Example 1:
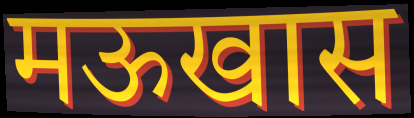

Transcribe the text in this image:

मऊखास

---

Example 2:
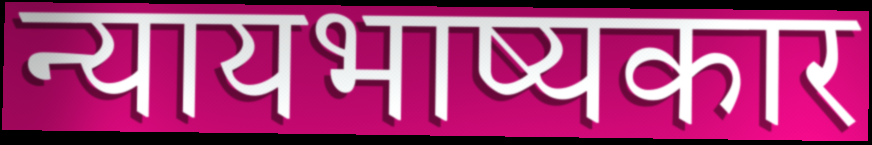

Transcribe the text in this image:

न्यायभाष्यकार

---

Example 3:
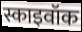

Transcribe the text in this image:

स्काइवॉक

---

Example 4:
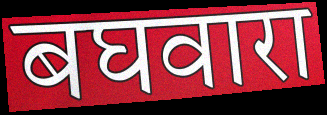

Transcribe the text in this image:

बघवारा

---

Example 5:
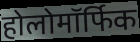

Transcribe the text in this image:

होलोमॉर्फिक